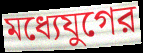
মধ্যেযুগের